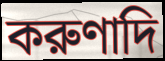
করুণাদি